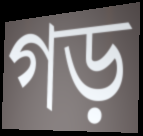
গড়